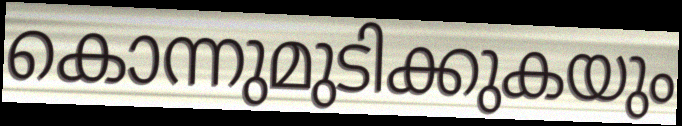
കൊന്നുമുടിക്കുകയും